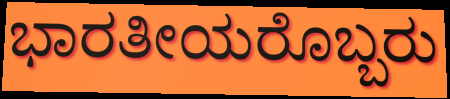
ಭಾರತೀಯರೊಬ್ಬರು